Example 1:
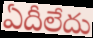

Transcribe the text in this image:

ఏదీలేదు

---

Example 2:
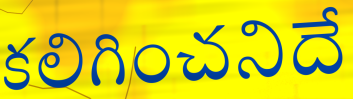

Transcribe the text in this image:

కలిగించనిదే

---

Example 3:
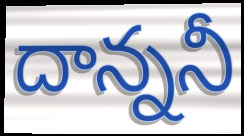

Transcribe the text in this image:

దాన్ననీ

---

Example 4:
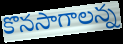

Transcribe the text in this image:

కొనసాగాలన్న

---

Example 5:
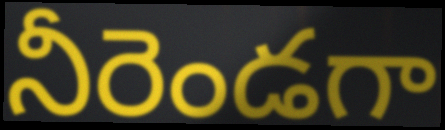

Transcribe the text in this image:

నీరెండగా